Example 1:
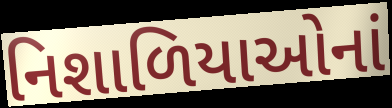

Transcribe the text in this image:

નિશાળિયાઓનાં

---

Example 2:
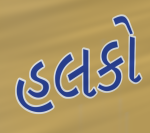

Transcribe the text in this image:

હલકો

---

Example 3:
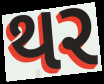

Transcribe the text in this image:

થર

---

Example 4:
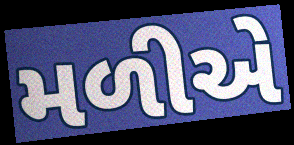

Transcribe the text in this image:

મળીએ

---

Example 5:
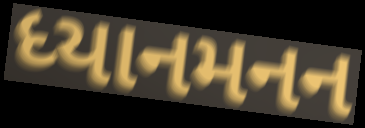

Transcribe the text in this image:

ધ્યાનમનન